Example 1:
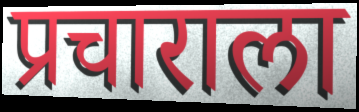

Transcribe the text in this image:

प्रचाराला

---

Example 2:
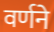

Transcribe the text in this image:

वर्णने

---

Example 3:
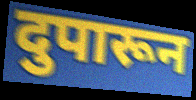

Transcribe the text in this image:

दुपारून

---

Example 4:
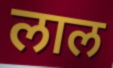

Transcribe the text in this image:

लाल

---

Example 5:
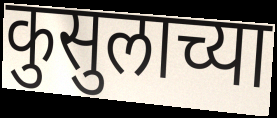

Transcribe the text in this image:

कुसुलाच्या